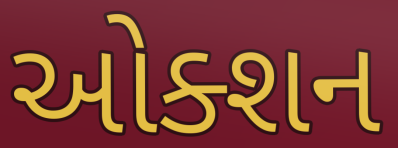
ઓક્શન